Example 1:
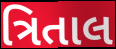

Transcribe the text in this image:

ત્રિતાલ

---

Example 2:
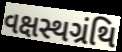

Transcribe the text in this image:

વક્ષસ્થગ્રંથિ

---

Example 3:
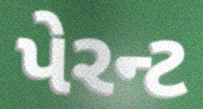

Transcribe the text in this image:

પેરન્ટ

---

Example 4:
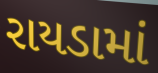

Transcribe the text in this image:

રાયડામાં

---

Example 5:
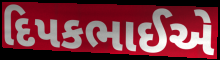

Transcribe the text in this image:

દિપકભાઈએ